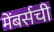
मेंबर्सची